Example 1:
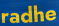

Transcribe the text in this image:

radhe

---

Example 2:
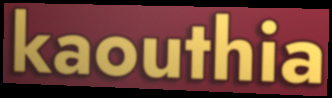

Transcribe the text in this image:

kaouthia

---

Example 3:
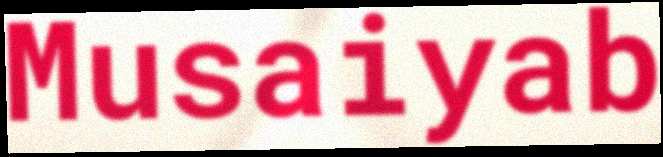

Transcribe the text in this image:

Musaiyab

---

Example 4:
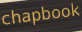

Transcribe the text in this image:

chapbook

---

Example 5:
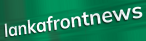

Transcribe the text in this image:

lankafrontnews